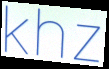
khz